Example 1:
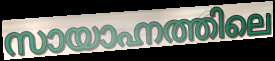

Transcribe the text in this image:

സായാഹ്നത്തിലെ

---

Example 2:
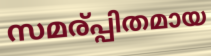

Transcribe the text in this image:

സമര്പ്പിതമായ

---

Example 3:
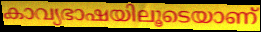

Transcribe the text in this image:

കാവ്യഭാഷയിലൂടെയാണ്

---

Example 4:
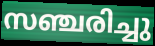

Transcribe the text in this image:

സഞ്ചരിച്ചു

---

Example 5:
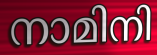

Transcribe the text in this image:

നാമിനി